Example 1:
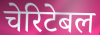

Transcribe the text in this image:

चेरिटेबल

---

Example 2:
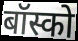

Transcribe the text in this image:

बॉस्को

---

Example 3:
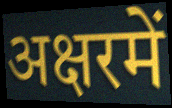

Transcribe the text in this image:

अक्षरमें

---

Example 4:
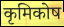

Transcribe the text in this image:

कृमिकोष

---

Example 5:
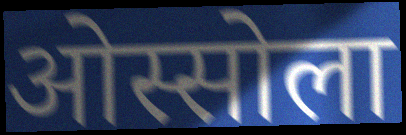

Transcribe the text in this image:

ओस्सोला